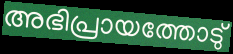
അഭിപ്രായത്തോടു്